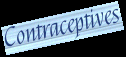
Contraceptives